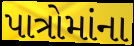
પાત્રોમાંના